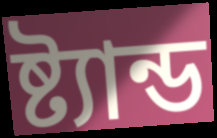
ষ্ট্যান্ড